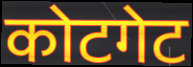
कोटगेट